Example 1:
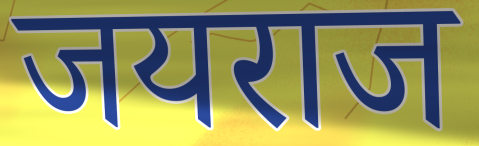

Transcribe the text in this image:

जयराज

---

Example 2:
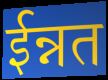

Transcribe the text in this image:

ईन्नत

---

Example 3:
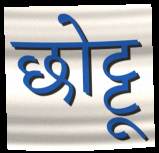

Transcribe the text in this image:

छोट्टू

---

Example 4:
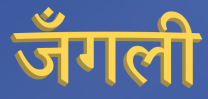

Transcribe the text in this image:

जँगली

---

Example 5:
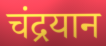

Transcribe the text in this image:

चंद्रयान